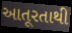
આતૂરતાથી